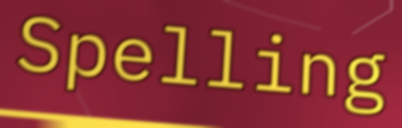
Spelling